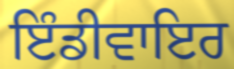
ਇੰਡੀਵਾਇਰ